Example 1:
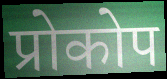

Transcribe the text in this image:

प्रोकोप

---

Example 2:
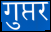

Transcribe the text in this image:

गुप्तर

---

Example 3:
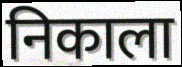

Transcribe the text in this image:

निकाला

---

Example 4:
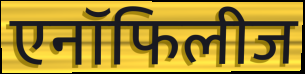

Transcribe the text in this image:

एनॉफिलीज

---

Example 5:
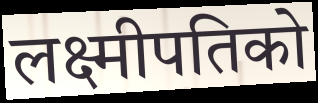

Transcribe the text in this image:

लक्ष्मीपतिको